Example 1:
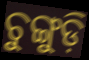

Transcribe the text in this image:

ଚୁଙ୍ଗୁଡ଼ି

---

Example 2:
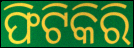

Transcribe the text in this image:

ଫିଟିକିରି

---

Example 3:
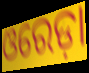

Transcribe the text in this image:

ଓରେଡ଼ା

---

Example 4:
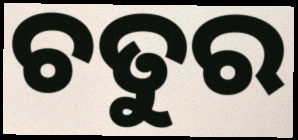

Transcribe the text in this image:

ଚତୁର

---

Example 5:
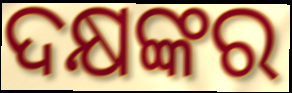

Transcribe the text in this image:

ଦକ୍ଷଙ୍କର